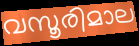
വസൂരിമാല